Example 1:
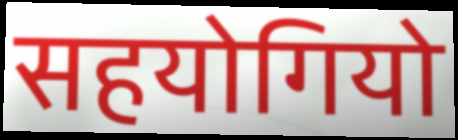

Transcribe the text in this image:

सहयोगियो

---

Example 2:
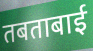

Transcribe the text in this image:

तबताबाई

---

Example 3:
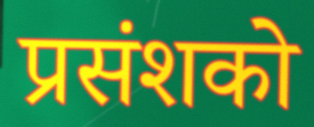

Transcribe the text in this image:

प्रसंशको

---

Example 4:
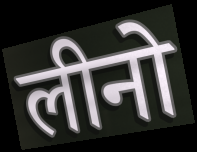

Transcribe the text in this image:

लीनो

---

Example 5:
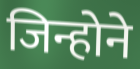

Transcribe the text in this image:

जिन्होने